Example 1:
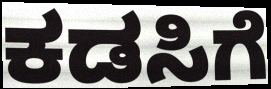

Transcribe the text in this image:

ಕಡಸಿಗೆ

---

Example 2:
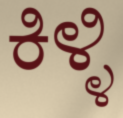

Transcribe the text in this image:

ಕಿಳ್ಳಿ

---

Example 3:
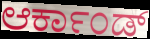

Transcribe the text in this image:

ಆರ್ಕಾಂಡ್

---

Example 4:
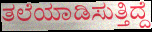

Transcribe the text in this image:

ತಲೆಯಾಡಿಸುತ್ತಿದ್ದೆ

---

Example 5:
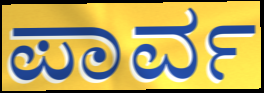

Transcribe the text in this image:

ಪಾರ್ವ